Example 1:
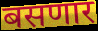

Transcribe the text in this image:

बसणार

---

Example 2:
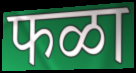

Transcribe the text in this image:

फळा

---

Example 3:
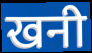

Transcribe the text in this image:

खनी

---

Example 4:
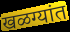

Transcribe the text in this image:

खळग्यांत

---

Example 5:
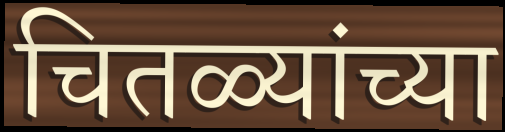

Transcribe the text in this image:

चितळ्यांच्या